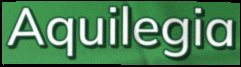
Aquilegia